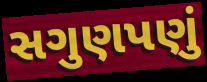
સગુણપણું